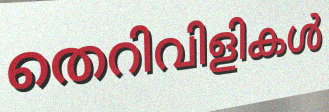
തെറിവിളികൾ